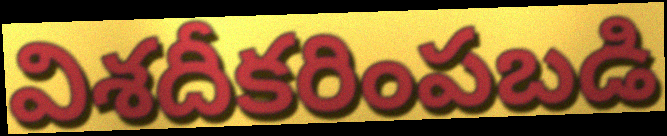
విశదీకరింపబడి